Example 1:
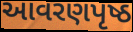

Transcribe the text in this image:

આવરણપૃષ્ઠ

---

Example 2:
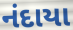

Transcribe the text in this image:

નંદાયા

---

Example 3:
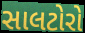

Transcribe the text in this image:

સાલટોરો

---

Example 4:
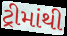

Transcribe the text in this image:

ટ્રીમાંથી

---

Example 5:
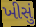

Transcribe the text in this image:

ખીસું